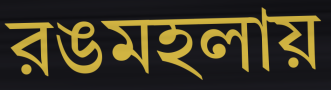
রঙমহলায়